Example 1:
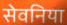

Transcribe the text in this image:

सेवनिया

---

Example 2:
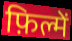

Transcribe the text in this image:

फ़िल्में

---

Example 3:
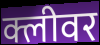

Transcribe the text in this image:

क्लीवर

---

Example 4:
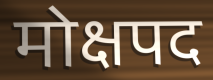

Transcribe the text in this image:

मोक्षपद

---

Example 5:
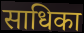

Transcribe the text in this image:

साधिका